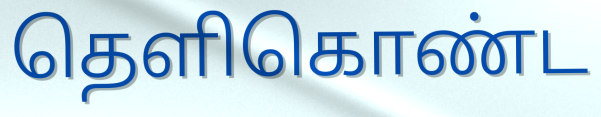
தெளிகொண்ட